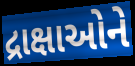
દ્રાક્ષાઓને